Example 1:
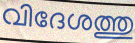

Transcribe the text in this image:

വിദേശത്തു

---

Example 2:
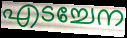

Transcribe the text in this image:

എടച്ചേന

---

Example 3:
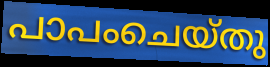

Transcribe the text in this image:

പാപംചെയ്തു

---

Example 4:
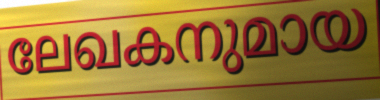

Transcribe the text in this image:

ലേഖകനുമായ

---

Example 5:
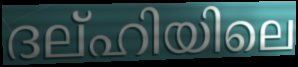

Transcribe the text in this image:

ദല്ഹിയിലെ